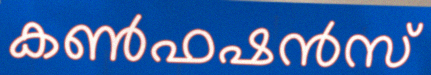
കൺഫഷൻസ്